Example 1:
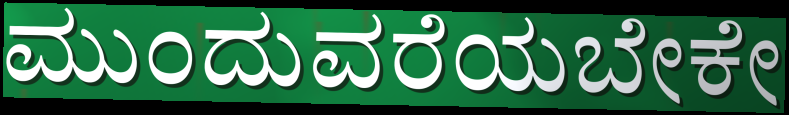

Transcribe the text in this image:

ಮುಂದುವರೆಯಬೇಕೇ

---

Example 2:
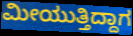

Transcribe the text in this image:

ಮೀಯುತ್ತಿದ್ದಾಗ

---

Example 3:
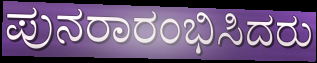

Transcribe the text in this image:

ಪುನರಾರಂಭಿಸಿದರು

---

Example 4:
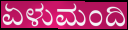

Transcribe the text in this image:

ಏಳುಮಂದಿ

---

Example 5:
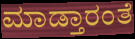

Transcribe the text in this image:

ಮಾಡ್ತಾರಂತೆ